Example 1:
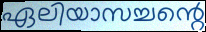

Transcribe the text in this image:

ഏലിയാസച്ചന്റെ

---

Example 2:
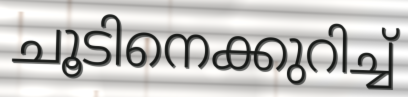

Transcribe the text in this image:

ചൂടിനെക്കുറിച്ച്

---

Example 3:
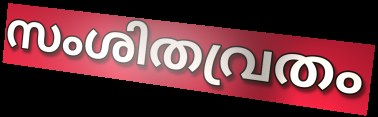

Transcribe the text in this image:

സംശിതവ്രതം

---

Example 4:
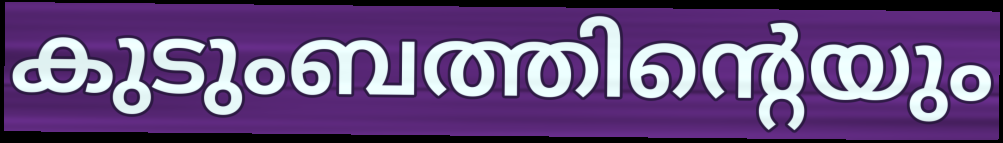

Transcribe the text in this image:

കുടുംബത്തിന്റെയും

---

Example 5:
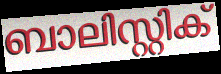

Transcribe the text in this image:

ബാലിസ്റ്റിക്